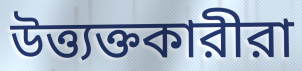
উত্ত্যক্তকারীরা